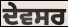
ਦੇਵਸਰ